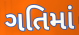
ગતિમાં